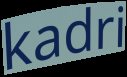
kadri